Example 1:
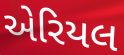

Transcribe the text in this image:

એરિયલ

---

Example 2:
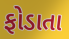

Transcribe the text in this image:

ફોડાતા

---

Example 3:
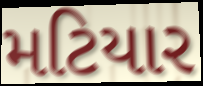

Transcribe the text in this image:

મટિયાર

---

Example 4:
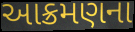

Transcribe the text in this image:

આક્રમણના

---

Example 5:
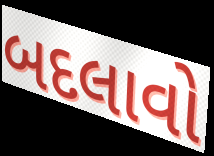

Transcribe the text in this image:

બદલાવો